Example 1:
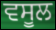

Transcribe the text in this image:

ਵਸੂਲ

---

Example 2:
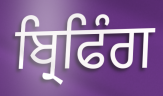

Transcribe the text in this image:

ਬ੍ਰਿਫਿੰਗ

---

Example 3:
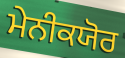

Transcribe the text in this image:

ਮੇਨੀਕਯੋਰ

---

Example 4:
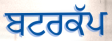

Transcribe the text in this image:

ਬਟਰਕੱਪ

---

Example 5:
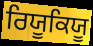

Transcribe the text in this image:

ਰਿਯੂਕਿਯੂ